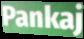
Pankaj